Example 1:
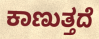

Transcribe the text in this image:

ಕಾಣುತ್ತದೆ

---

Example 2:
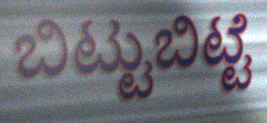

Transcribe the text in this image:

ಬಿಟ್ಟುಬಿಟ್ಟೆ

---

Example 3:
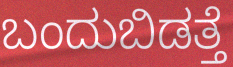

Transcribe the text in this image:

ಬಂದುಬಿಡತ್ತೆ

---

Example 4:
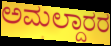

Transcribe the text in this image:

ಅಮಲ್ದಾರರ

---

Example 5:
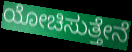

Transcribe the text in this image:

ಯೋಚಿಸುತ್ತೇನೆ